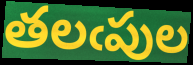
తలఁపుల